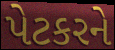
પેટકરને